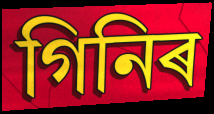
গিনিৰ